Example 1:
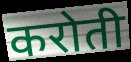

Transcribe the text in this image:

करोती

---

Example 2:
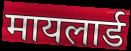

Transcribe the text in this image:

मायलार्ड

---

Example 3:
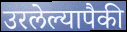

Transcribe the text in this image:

उरलेल्यापैकी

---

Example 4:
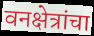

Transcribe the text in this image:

वनक्षेत्रांचा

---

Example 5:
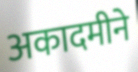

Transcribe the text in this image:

अकादमीने